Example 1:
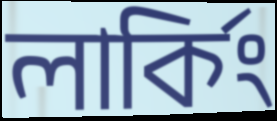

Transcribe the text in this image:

লার্কিং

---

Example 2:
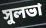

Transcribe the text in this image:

সুলভা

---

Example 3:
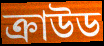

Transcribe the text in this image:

ক্রাউড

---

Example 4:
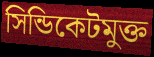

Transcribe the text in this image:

সিন্ডিকেটমুক্ত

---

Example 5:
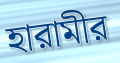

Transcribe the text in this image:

হারামীর